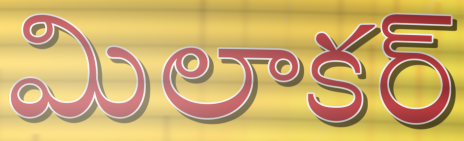
మిలాకర్